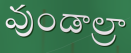
వుండాల్రా